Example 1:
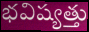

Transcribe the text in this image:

భవిష్యత్తు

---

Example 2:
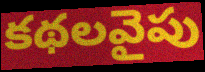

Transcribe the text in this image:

కథలవైపు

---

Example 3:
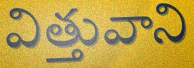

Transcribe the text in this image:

విత్తువాని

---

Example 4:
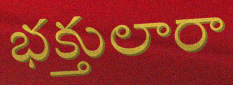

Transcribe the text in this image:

భక్తులారా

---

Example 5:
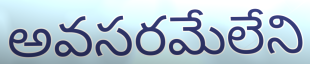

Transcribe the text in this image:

అవసరమేలేని